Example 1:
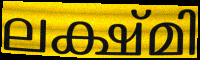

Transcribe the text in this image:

ലക്ഷ്‌മി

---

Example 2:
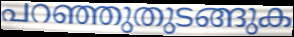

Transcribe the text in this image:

പറഞ്ഞുതുടങ്ങുക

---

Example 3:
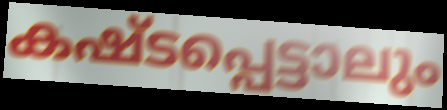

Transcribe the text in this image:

കഷ്ടപ്പെട്ടാലും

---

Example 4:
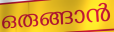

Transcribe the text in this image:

ഒരുങ്ങാൻ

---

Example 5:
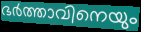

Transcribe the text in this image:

ഭർത്താവിനെയും